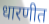
धारणीत